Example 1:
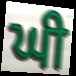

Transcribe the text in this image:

ਘੀ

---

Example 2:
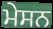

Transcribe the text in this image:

ਮੇਸਨ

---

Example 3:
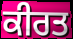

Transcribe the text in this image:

ਕੀਰਤ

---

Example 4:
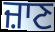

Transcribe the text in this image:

ਜ਼ਾਣ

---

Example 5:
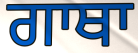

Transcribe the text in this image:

ਗਾਥਾ